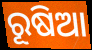
ରୂଷିଆ